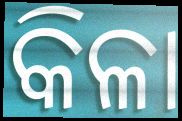
କିଳା